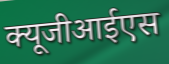
क्यूजीआईएस